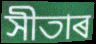
সীতাৰ